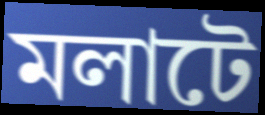
মলাটে